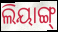
ଲିୟାଙ୍ଗ୍